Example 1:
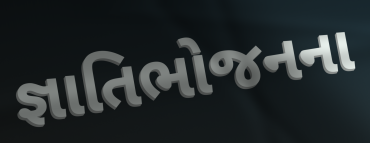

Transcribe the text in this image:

જ્ઞાતિભોજનના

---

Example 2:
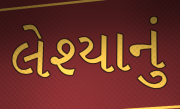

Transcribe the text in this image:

લેશ્યાનું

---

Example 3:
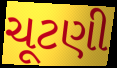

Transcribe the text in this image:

ચૂટણી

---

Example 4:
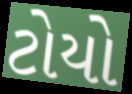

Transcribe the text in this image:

ટોયો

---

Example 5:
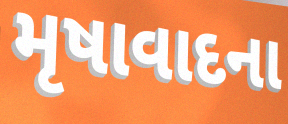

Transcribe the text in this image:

મૃષાવાદના